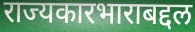
राज्यकारभाराबद्दल